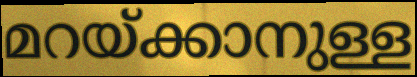
മറയ്ക്കാനുള്ള